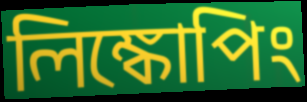
লিঙ্কোপিং